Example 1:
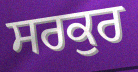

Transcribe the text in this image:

ਸਰਕੁਰ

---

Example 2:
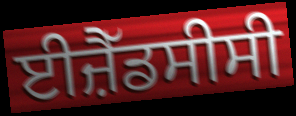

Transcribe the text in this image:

ਈਜ਼ੈੱਡਸੀਸੀ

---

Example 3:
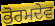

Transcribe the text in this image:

ਭੋਰਮਦੇਵ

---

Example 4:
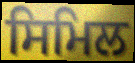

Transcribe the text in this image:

ਸਿਮਿਲ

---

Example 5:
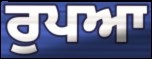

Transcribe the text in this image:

ਰੁਪਆ